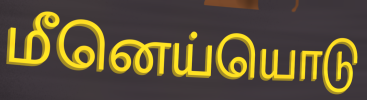
மீனெய்யொடு